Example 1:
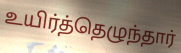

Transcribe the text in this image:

உயிர்த்தெழுந்தார்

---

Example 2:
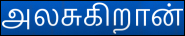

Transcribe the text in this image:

அலசுகிறான்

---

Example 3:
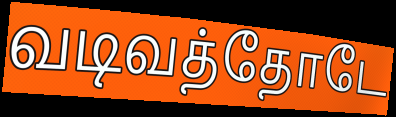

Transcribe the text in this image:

வடிவத்தோடே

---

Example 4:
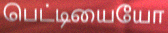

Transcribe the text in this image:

பெட்டியையோ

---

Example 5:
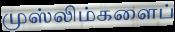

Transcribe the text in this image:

முஸ்லிம்களைப்